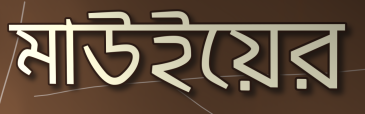
মাউইয়ের